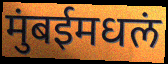
मुंबईमधलं